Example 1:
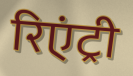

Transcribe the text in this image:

रिएंट्री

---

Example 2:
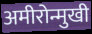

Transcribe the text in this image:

अमीरोन्मुखी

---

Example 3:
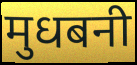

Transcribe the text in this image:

मुधबनी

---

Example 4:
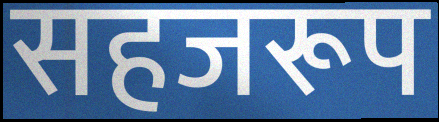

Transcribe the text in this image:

सहजरूप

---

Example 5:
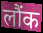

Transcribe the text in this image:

लौंक